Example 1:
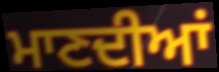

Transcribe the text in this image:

ਮਾਣਦੀਆਂ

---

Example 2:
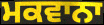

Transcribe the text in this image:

ਮਕਵਾਨਾ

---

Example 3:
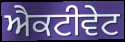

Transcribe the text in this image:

ਐਕਟੀਵੇਟ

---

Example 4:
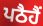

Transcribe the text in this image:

ਪਠੈਹੈਂ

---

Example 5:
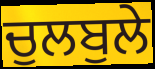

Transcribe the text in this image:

ਚੁਲਬੁਲੇ